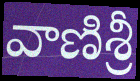
వాణిశ్రీ